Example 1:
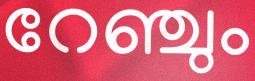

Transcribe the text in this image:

റേഞ്ചും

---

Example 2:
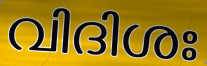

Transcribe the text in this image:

വിദിശഃ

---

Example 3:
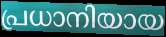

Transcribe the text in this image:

പ്രധാനിയായ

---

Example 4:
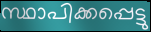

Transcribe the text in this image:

സ്ഥാപിക്കപ്പെട്ടു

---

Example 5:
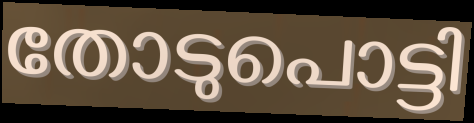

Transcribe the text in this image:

തോടുപൊട്ടി